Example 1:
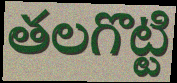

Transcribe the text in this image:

తలగొట్టి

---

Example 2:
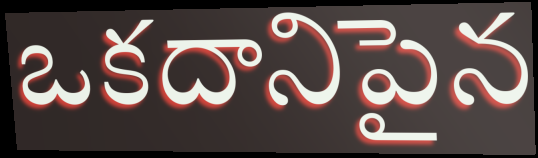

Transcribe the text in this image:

ఒకదానిపైన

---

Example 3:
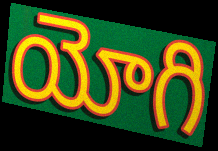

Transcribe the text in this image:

యోగి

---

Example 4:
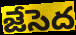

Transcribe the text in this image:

జేసెద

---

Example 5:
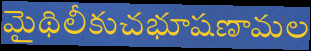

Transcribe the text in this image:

మైథిలీకుచభూషణామల